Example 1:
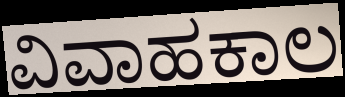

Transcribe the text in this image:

ವಿವಾಹಕಾಲ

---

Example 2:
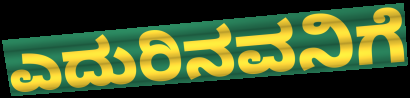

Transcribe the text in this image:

ಎದುರಿನವನಿಗೆ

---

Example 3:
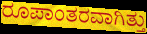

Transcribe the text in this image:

ರೂಪಾಂತರವಾಗಿತ್ತು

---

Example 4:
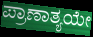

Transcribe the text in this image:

ಪ್ರಾಣಾತ್ಯಯೇ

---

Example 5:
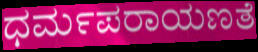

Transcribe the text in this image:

ಧರ್ಮಪರಾಯಣತೆ